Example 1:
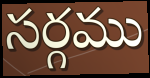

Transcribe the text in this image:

సర్గము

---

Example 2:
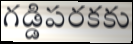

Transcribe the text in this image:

గడ్డిపరకకు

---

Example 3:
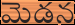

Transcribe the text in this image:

మెడన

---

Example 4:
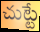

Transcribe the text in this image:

చుట్టే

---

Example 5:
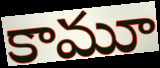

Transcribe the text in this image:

కామూ